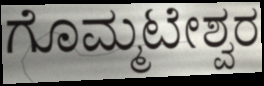
ಗೊಮ್ಮಟೇಶ್ವರ